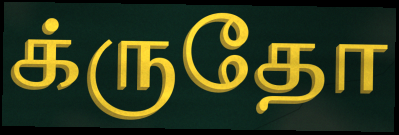
க்ருதோ